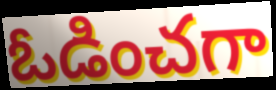
ఓడించగా